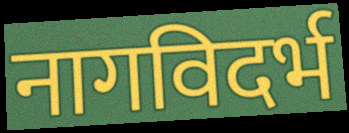
नागविदर्भ